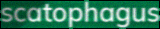
scatophagus